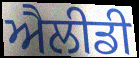
ਐਲੀਡੀ